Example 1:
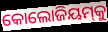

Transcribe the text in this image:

କୋଲୋଜିୟମ୍‍କୁ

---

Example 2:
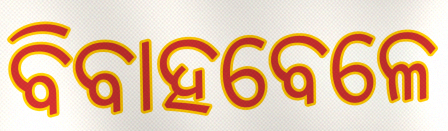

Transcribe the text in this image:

ବିବାହବେଳେ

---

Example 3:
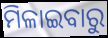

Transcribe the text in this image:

ମିଳାଇବାରୁ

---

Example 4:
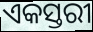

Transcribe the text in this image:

ଏକସ୍ତରୀ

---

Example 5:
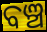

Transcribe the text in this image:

ବଞ୍ଚ